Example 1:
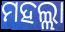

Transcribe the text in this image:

ମହଲ୍ଲା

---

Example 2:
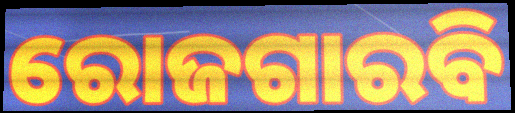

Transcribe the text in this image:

ରୋଜଗାରବି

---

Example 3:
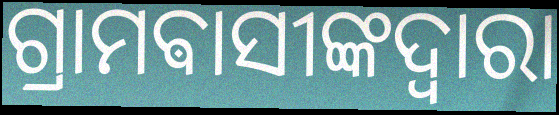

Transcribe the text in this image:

ଗ୍ରାମଵାସୀଙ୍କଦ୍ୱାରା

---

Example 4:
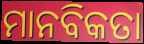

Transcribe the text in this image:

ମାନବିକତା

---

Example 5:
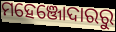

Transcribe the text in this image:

ମହେଞ୍ଜୋଦାରରୁ